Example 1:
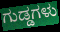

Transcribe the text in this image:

ಗುಡ್ಡಗಳು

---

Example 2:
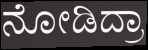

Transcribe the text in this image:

ನೋಡಿದ್ರಾ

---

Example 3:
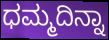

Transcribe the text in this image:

ಧಮ್ಮದಿನ್ನಾ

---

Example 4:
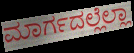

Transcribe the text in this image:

ಮಾರ್ಗದಲ್ಲೆಲ್ಲಾ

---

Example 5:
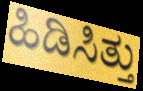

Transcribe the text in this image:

ಹಿಡಿಸಿತ್ತು